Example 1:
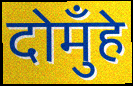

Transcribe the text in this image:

दोमुँहे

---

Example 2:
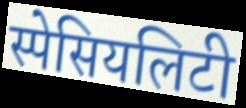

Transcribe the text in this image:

स्पेसियलिटी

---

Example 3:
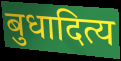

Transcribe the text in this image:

बुधादित्य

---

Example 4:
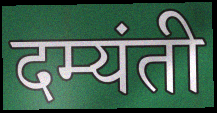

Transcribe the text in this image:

दम्यंती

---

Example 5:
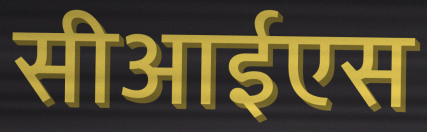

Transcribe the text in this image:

सीआईएस